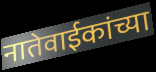
नातेवाईकांच्या